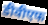
डीवीएफ